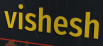
vishesh